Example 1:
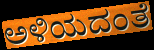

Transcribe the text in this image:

ಅಳಿಯದಂತೆ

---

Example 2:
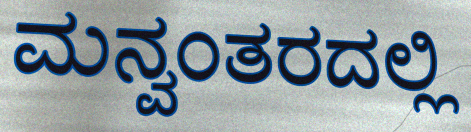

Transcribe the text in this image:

ಮನ್ವಂತರದಲ್ಲಿ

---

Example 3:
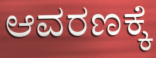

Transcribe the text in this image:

ಆವರಣಕ್ಕೆ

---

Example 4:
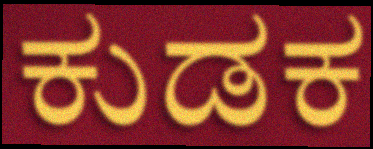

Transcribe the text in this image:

ಕುಡಕ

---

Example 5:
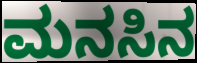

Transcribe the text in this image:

ಮನಸಿನ